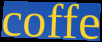
coffe